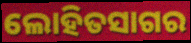
ଲୋହିତସାଗର